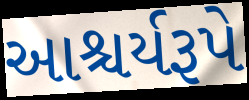
આશ્ચર્યરૂપે